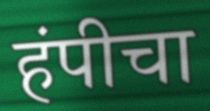
हंपीचा